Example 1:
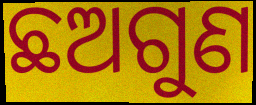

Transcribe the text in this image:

ଛଅଗୁଣ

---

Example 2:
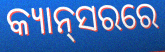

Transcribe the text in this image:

କ୍ୟାନ୍‌ସରରେ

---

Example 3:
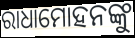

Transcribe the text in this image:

ରାଧାମୋହନଙ୍କୁ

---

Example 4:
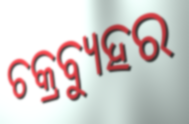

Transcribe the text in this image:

ଚକ୍ରବ୍ୟୁହର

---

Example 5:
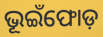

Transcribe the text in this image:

ଭୂଇଁଫୋଡ଼